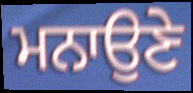
ਮਨਾਉਣੇ